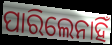
ପାରିଲେନାହିଁ